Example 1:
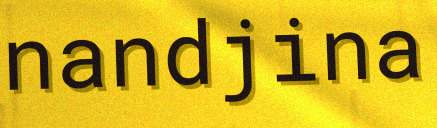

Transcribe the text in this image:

nandjina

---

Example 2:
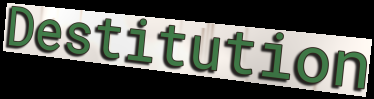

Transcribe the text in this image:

Destitution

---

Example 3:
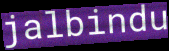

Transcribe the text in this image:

jalbindu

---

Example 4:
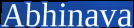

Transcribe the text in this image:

Abhinava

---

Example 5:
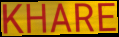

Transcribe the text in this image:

KHARE